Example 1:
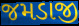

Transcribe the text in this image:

જમડાજી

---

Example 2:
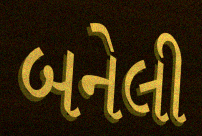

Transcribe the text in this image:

બનેલી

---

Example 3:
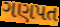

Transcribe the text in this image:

ગણપત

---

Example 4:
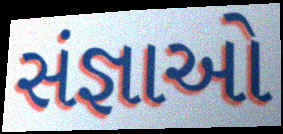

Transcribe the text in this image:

સંજ્ઞાઓ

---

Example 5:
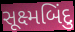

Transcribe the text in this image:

સૂક્ષ્મબિંદુ